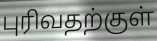
புரிவதற்குள்